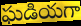
ఘడియగా